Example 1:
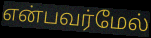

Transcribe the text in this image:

என்பவர்மேல்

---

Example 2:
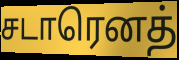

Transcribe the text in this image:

சடாரெனத்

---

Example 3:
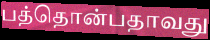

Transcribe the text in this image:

பத்தொன்பதாவது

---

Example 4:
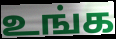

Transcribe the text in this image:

உங்க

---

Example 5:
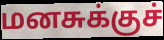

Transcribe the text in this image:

மனசுக்குச்